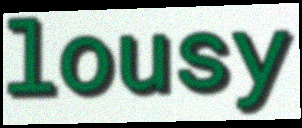
lousy